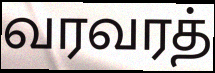
வரவரத்